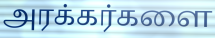
அரக்கர்களை